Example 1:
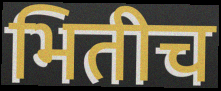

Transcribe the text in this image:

भितीच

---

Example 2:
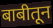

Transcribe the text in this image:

बाबीतून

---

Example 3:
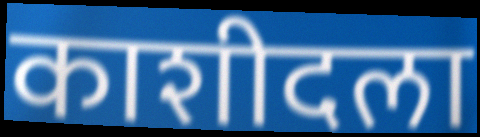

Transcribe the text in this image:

काशीदला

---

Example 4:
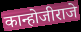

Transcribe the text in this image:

कान्होजीराजे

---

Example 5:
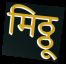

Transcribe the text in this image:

मिठ्ठू